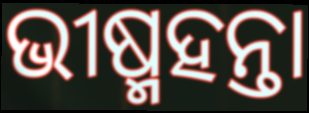
ଭୀଷ୍ମହନ୍ତା